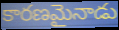
కారణమైనాడు